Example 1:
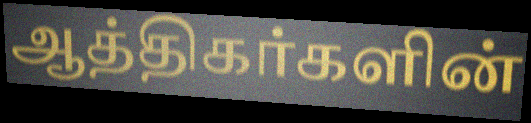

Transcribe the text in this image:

ஆத்திகர்களின்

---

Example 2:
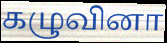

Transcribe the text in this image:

கழுவினா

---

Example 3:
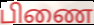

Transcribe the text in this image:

பிணை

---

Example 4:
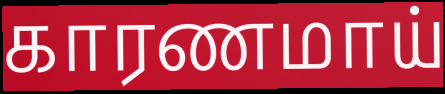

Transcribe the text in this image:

காரணமாய்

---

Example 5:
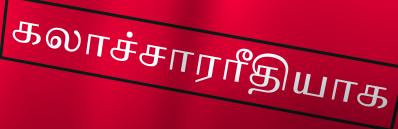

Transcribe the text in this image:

கலாச்சாரரீதியாக